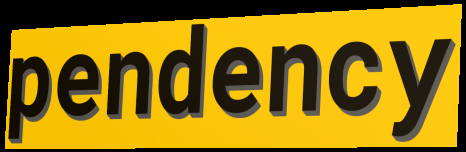
pendency